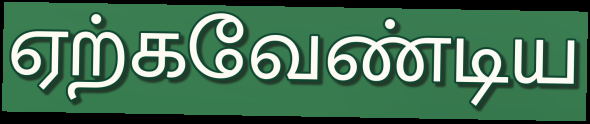
ஏற்கவேண்டிய